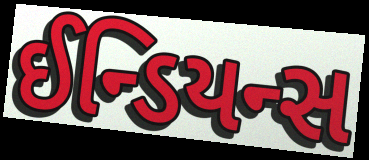
ઈન્ડિયન્સ